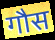
गौस